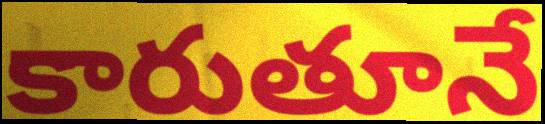
కారుతూనే